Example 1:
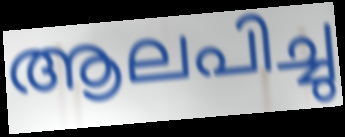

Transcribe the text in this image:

ആലപിച്ചു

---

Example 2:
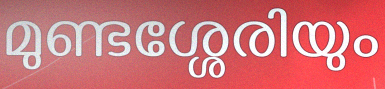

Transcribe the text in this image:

മുണ്ടശ്ശേരിയും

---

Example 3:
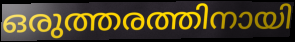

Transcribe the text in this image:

ഒരുത്തരത്തിനായി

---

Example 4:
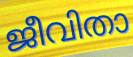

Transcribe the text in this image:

ജീവിതാ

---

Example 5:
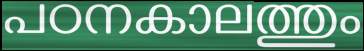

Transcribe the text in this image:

പഠനകാലത്തും